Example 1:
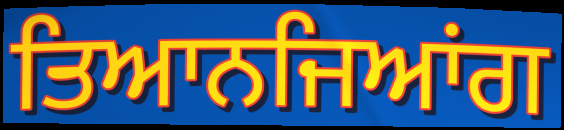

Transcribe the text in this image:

ਤਿਆਨਜਿਆਂਗ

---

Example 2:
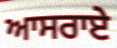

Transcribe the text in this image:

ਆਸਰਾਏ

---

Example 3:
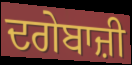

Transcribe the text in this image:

ਦਗੇਬਾਜ਼ੀ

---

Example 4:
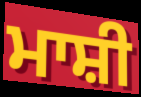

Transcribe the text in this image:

ਮਾਸ਼ੀ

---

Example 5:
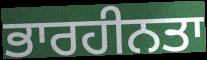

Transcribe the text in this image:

ਭਾਰਹੀਨਤਾ